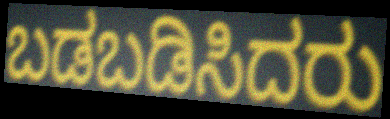
ಬಡಬಡಿಸಿದರು